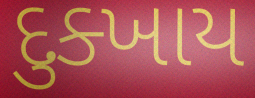
દુક્ખાય